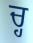
ਚ੍ਹ